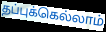
தப்புக்கெல்லாம்